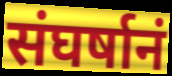
संघर्षानं